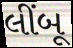
લીંબૂ